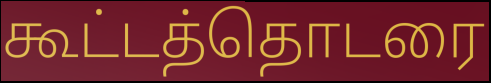
கூட்டத்தொடரை